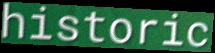
historic